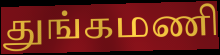
துங்கமணி